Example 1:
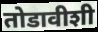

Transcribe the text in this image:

तोडावीशी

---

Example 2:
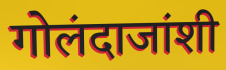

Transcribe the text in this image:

गोलंदाजांशी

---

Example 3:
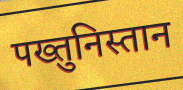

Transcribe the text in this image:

पख्तुनिस्तान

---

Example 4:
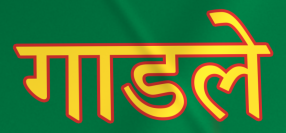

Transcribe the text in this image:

गाडले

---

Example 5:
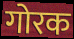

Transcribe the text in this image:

गोरक